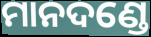
ମାନଦଣ୍ଡେ